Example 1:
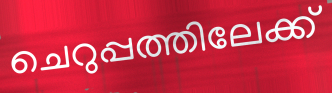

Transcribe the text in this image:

ചെറുപ്പത്തിലേക്ക്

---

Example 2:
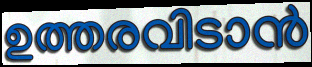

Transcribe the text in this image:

ഉത്തരവിടാൻ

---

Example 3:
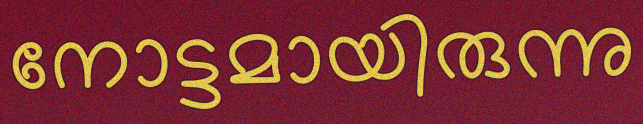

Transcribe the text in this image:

നോട്ടമായിരുന്നു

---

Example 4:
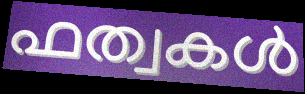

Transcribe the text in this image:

ഫത്വകൾ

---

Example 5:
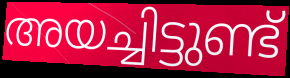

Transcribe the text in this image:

അയച്ചിട്ടുണ്ട്